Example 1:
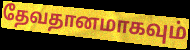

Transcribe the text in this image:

தேவதானமாகவும்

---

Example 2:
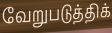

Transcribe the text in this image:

வேறுபடுத்திக்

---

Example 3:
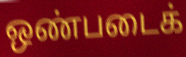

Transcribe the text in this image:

ஒண்படைக்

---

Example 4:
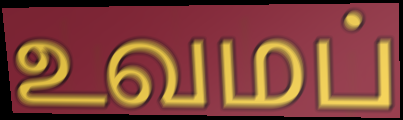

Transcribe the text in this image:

உவமப்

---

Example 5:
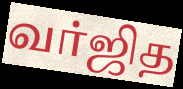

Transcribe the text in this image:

வர்ஜித